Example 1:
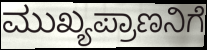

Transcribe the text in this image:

ಮುಖ್ಯಪ್ರಾಣನಿಗೆ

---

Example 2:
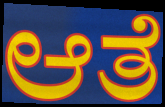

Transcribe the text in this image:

ಆತೆ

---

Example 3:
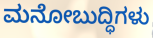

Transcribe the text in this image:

ಮನೋಬುದ್ಧಿಗಳು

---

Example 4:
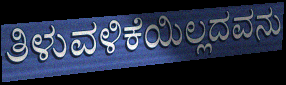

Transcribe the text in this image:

ತಿಳುವಳಿಕೆಯಿಲ್ಲದವನು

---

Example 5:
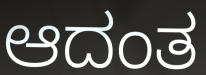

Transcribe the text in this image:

ಆದಂತ